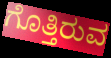
ಗೊತ್ತಿರುವ